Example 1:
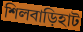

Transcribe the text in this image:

শিলবাড়িহাট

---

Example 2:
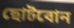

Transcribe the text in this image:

ছোটবোন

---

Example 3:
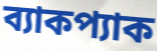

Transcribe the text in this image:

ব্যাকপ্যাক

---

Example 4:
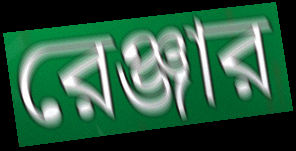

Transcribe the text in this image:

রেঞ্জার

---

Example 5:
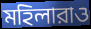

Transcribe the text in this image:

মহিলারাও